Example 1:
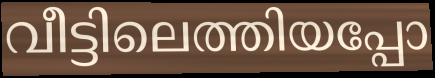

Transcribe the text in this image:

വീട്ടിലെത്തിയപ്പോ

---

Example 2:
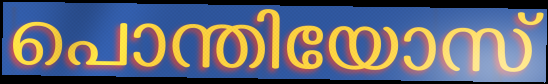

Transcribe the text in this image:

പൊന്തിയോസ്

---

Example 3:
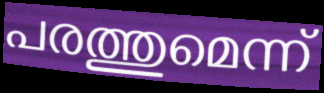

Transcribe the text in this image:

പരത്തുമെന്ന്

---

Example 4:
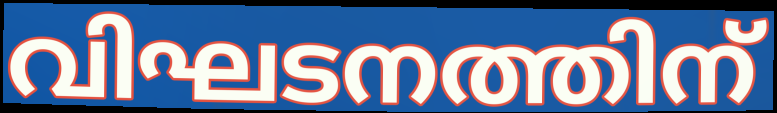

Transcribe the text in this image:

വിഘടനത്തിന്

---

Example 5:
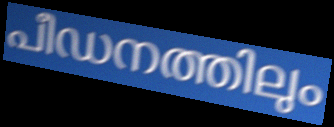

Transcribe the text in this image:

പീഡനത്തിലും